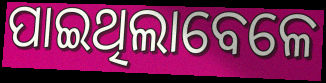
ପାଇଥିଲାବେଳେ